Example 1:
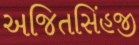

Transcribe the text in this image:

અજિતસિંહજી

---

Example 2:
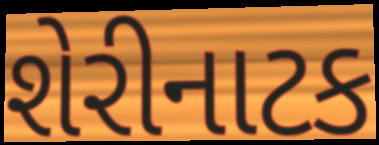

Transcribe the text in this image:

શેરીનાટક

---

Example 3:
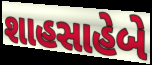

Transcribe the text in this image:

શાહસાહેબે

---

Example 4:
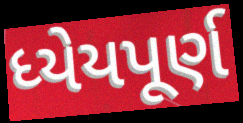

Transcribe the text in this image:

ધ્યેયપૂર્ણ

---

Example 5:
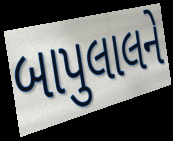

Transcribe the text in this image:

બાપુલાલને